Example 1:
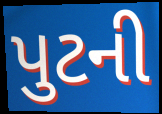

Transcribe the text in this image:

પુટની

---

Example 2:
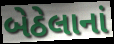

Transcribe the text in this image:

બેઠેલાનાં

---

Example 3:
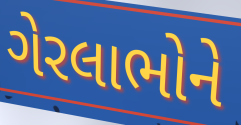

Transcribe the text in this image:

ગેરલાભોને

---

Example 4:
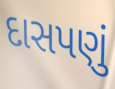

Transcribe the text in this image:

દાસપણું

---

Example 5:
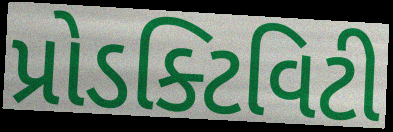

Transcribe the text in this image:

પ્રોડક્ટિવિટી